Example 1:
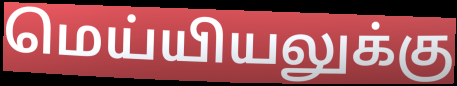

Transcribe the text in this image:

மெய்யியலுக்கு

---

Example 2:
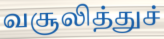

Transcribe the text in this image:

வசூலித்துச்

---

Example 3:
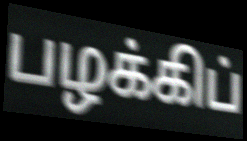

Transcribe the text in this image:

பழக்கிப்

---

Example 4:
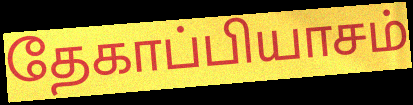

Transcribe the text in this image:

தேகாப்பியாசம்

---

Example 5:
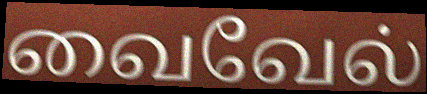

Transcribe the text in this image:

வைவேல்